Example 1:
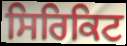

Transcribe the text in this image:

ਸਿਰਿਕਿਟ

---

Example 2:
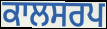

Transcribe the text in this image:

ਕਾਲਸਰਪ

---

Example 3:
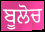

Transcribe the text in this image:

ਬੂਲੋਚ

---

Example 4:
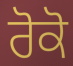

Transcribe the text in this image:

ਰੋਕੋ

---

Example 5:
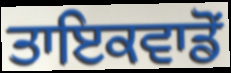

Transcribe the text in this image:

ਤਾਇਕਵਾਡੋਂ